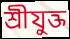
শ্রীযুক্ত